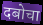
दबोचा